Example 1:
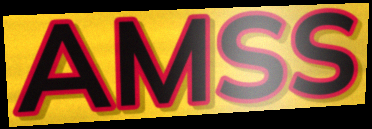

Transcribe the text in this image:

AMSS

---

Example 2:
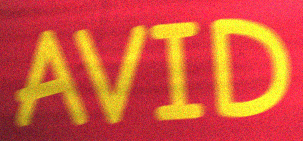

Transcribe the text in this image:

AVID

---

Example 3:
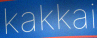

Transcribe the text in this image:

kakkai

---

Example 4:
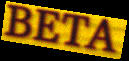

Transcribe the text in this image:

BETA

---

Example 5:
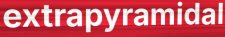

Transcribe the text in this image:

extrapyramidal